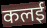
कलई